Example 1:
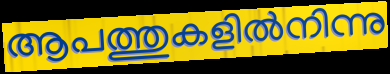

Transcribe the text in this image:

ആപത്തുകളിൽനിന്നു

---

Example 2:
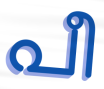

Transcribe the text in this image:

പീ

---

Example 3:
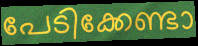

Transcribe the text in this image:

പേടിക്കേണ്ടാ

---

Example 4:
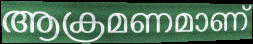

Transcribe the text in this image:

ആക്രമണമാണ്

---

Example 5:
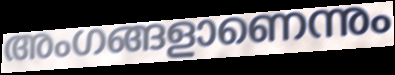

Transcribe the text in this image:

അംഗങ്ങളാണെന്നും